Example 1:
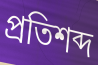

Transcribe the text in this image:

প্ৰতিশব্দ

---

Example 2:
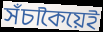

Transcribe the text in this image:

সঁচাকৈয়েই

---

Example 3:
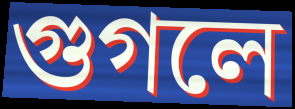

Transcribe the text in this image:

গুগলে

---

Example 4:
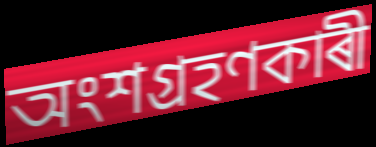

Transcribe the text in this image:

অংশগ্ৰহণকাৰী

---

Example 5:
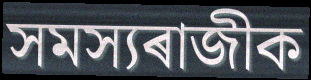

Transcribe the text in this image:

সমস্যৰাজীক